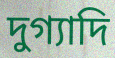
দুগ্যাদি